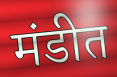
मंडीत